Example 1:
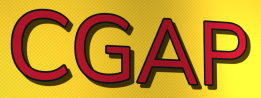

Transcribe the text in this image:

CGAP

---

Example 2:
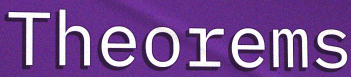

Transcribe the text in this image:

Theorems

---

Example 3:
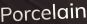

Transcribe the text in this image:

Porcelain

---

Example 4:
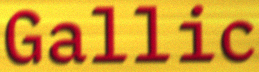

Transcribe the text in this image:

Gallic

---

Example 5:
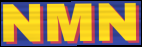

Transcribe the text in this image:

NMN